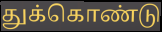
துக்கொண்டு